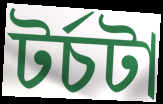
টর্চটা